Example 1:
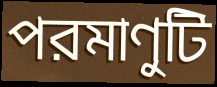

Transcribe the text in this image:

পরমাণুটি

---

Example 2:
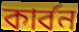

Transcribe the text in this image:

কার্বন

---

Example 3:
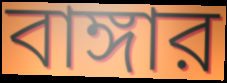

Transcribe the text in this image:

বাঙ্গার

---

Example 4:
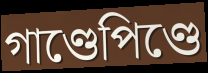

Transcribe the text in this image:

গাণ্ডেপিণ্ডে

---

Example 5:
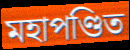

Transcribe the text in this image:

মহাপণ্ডিত